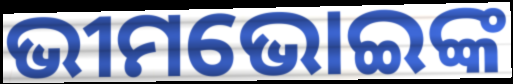
ଭୀମଭୋଇଙ୍କ